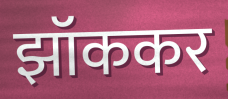
झॉककर